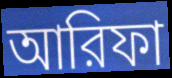
আরিফা